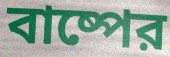
বাষ্পের